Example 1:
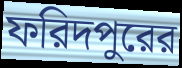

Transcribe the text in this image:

ফরিদপুরের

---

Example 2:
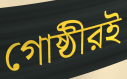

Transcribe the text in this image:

গোষ্ঠীরই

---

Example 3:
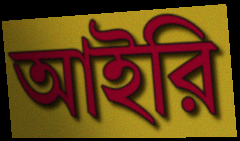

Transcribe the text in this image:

আইরি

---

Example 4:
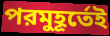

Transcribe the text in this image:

পরমুহূর্তেই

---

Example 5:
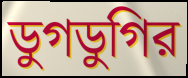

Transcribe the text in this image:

ডুগডুগির